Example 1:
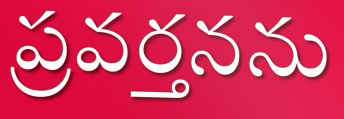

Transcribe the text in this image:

ప్రవర్తనను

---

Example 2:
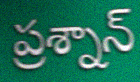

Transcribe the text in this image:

ప్రశ్నాన్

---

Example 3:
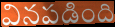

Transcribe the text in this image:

వినపడింది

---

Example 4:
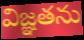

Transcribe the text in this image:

విజ్ఞతను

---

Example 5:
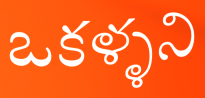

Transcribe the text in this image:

ఒకళ్ళని